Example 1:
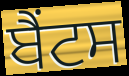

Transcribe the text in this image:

ਬੈਂਟਸ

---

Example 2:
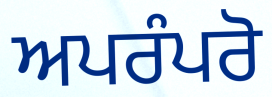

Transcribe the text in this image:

ਅਪਰੰਪਰੋ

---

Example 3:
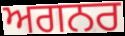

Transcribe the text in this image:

ਅਗਨਰ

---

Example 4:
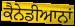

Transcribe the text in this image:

ਕੈਨੇਡੀਆਨਾਂ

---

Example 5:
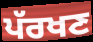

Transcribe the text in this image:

ਪੱਰਖਣ